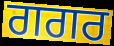
ਗਗਰ